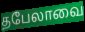
தபேலாவை